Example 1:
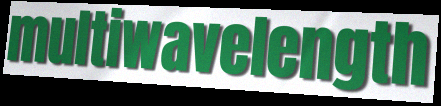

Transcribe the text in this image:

multiwavelength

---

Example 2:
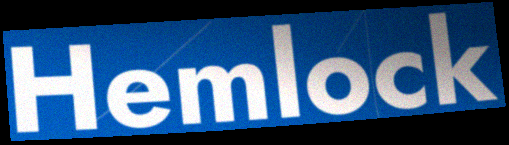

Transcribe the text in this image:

Hemlock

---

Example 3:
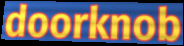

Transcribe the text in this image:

doorknob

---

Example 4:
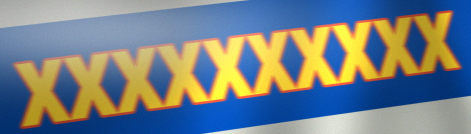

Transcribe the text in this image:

XXXXXXXXXX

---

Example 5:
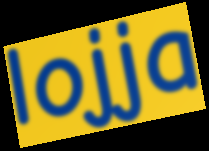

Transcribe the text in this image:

lojja